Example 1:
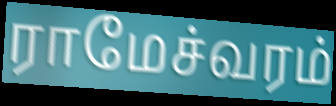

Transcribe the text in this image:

ராமேச்வரம்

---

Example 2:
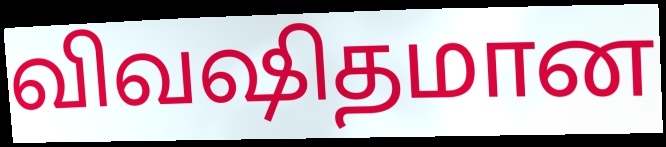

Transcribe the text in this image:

விவஷிதமான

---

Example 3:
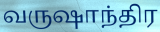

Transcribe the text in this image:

வருஷாந்திர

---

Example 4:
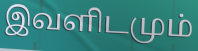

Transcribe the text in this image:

இவளிடமும்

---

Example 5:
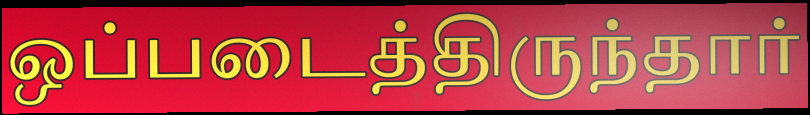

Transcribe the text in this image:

ஒப்படைத்திருந்தார்